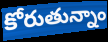
కోరుతున్నాం